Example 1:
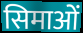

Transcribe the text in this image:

सिमाओं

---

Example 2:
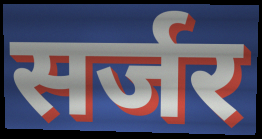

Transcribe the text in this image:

सर्जर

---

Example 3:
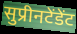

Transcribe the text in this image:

सुप्रीनटेंडेंट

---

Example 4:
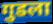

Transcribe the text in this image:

गुडला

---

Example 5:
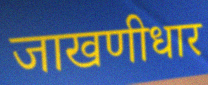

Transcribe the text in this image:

जाखणीधार